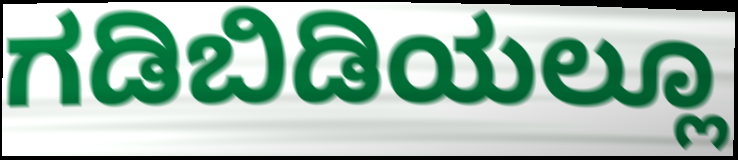
ಗಡಿಬಿಡಿಯಲ್ಲೂ